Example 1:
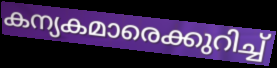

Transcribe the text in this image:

കന്യകമാരെക്കുറിച്ച്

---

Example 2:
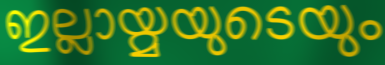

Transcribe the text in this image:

ഇല്ലായ്മയുടെയും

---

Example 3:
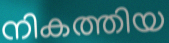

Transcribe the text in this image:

നികത്തിയ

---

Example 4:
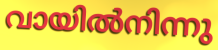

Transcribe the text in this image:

വായിൽനിന്നു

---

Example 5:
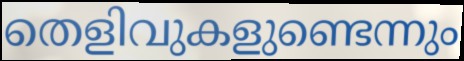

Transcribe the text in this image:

തെളിവുകളുണ്ടെന്നും